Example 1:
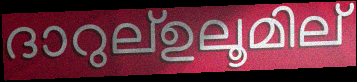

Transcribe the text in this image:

ദാറുല്ഉലൂമില്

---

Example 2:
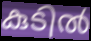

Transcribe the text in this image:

കുടിൽ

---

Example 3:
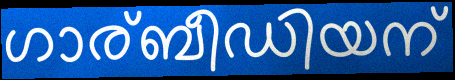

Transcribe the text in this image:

ഗാര്ബീഡിയന്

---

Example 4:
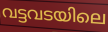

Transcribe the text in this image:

വട്ടവടയിലെ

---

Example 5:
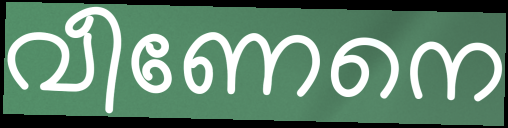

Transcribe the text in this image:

വീണേനെ